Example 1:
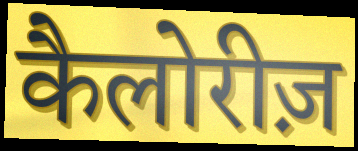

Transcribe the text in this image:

कैलोरीज़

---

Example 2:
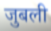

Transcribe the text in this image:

जुबली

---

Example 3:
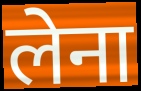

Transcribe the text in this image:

लेना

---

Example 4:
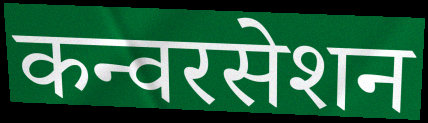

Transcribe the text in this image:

कन्वरसेशन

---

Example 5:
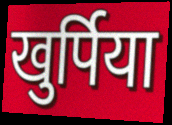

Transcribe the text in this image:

खुर्पिया